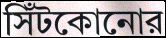
সিঁটকোনোর